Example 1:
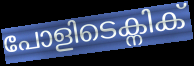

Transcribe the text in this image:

പോളിടെക്നിക്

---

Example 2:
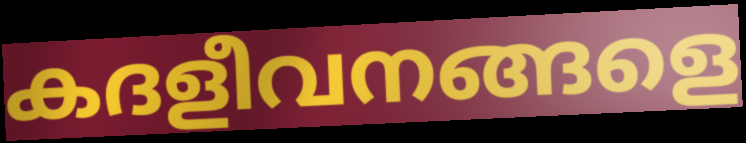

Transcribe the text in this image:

കദളീവനങ്ങളെ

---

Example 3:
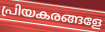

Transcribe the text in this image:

പ്രിയകരങ്ങളേ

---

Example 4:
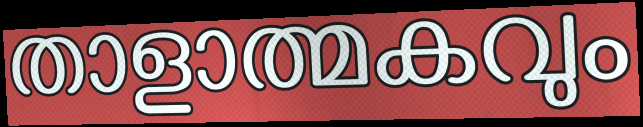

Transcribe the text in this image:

താളാത്മകവും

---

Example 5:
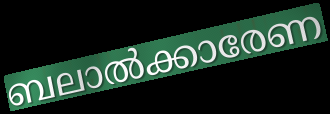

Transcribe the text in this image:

ബലാൽക്കാരേണ